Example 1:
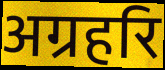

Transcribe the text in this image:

अग्रहरि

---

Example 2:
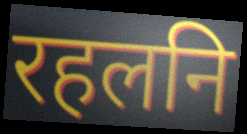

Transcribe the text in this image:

रहलनि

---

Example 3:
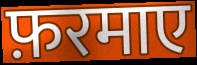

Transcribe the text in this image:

फ़रमाए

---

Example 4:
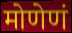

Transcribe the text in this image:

मोणेणं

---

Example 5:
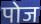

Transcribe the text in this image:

पोज